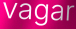
vagar